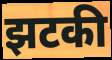
झटकी